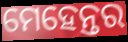
ମେହେନ୍ତର